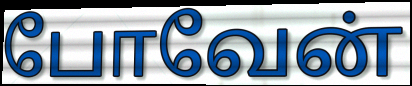
போவேன்